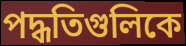
পদ্ধতিগুলিকে